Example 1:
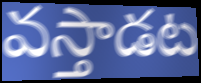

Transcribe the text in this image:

వస్తాడట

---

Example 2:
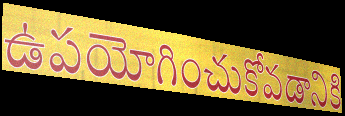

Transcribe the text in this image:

ఉపయోగించుకోవడానికి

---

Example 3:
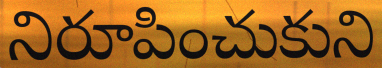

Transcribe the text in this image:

నిరూపించుకుని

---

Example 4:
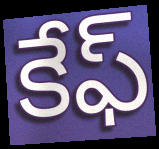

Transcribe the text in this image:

కేఫ్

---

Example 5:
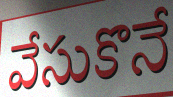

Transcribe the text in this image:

వేసుకొనే